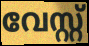
വേസ്റ്റ്